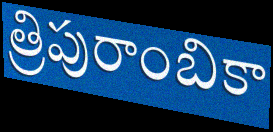
త్రిపురాంబికా